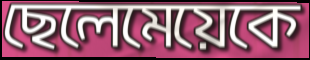
ছেলেমেয়েকে